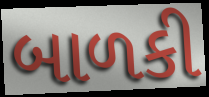
બાળકી